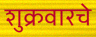
शुक्रवारचे